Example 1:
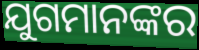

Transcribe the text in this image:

ଯୁଗମାନଙ୍କର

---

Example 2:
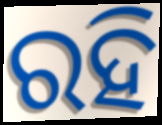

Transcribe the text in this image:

ରହି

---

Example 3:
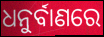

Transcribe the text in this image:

ଧନୁର୍ବାଣରେ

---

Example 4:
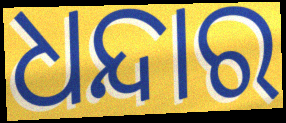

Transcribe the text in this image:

ଧନ୍ଦାର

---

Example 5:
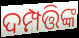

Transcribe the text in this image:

ଦମ୍ପତ୍ତିଙ୍କ